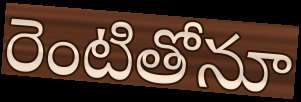
రెంటితోనూ